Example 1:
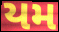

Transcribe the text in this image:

યમ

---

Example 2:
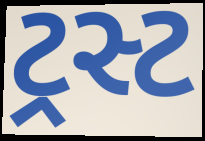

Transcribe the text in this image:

ટ્રસ્ટ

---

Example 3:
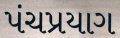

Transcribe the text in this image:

પંચપ્રયાગ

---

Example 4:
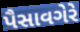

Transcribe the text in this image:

પૈસાવગેરે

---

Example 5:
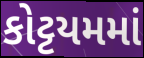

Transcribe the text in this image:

કોટ્ટયમમાં